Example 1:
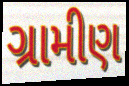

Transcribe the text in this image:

ગ્રામીણ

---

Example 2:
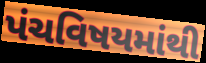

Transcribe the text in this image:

પંચવિષયમાંથી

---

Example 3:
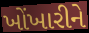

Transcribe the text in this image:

ખોંખારીને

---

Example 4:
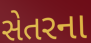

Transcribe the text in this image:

સેતરના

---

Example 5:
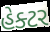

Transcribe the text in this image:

હેક્ટર